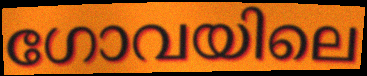
ഗോവയിലെ